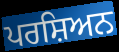
ਪਰਸ਼ਿਅਨ